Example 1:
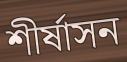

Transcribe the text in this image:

শীর্ষাসন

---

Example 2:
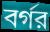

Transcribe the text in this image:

বর্গর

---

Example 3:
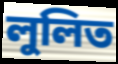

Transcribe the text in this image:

লুলিত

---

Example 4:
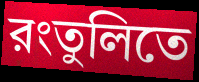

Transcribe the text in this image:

রংতুলিতে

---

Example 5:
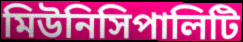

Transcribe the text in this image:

মিউনিসিপালিটি